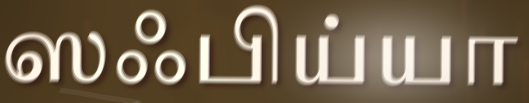
ஸஃபிய்யா